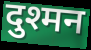
दुश्मन